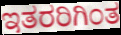
ಇತರರಿಗಿಂತ